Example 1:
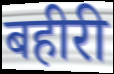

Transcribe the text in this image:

बहीरी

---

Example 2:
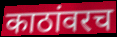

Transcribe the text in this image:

काठांवरच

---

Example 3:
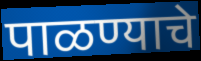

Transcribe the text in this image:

पाळण्याचे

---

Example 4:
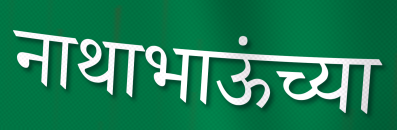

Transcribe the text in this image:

नाथाभाऊंच्या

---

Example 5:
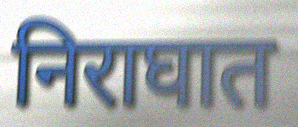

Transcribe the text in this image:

निराघात